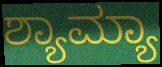
ಶ್ಯಾಮ್ಯಾ